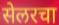
सेलरचा